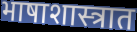
भाषाशास्त्रात